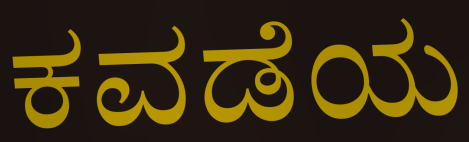
ಕವಡೆಯ